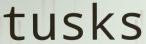
tusks